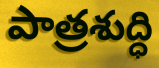
పాత్రశుద్ధి